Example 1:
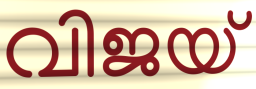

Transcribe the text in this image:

വിജയ്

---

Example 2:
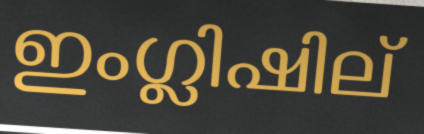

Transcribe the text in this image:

ഇംഗ്ലിഷില്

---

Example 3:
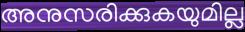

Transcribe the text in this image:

അനുസരിക്കുകയുമില്ല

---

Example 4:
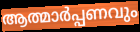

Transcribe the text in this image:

ആത്മാർപ്പണവും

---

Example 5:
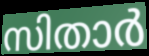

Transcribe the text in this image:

സിതാർ